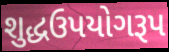
શુદ્ધઉપયોગરૂપ